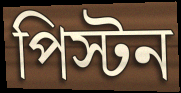
পিস্টন